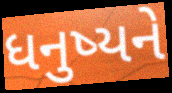
ધનુષ્યને